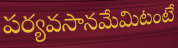
పర్యవసానమేమిటంటే